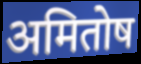
अमितोष